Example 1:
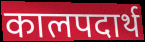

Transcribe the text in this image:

कालपदार्थ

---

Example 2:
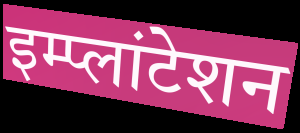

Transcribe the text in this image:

इम्प्लांटेशन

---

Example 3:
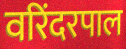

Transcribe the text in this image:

वरिंदरपाल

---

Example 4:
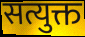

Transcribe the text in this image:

सत्युक्त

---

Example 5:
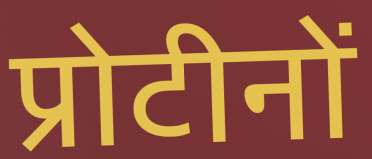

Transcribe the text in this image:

प्रोटीनों